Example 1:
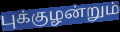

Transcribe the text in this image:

புக்குழன்றும்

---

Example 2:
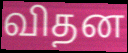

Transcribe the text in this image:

விதன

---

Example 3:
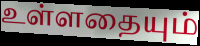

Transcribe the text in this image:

உள்ளதையும்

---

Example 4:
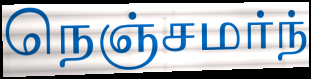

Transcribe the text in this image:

நெஞ்சமர்ந்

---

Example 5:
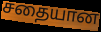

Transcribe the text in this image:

சதையான